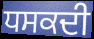
ਧਸਕਦੀ